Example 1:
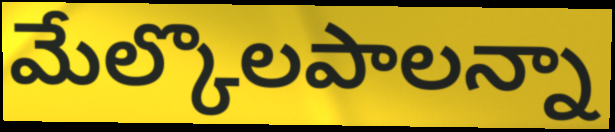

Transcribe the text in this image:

మేల్కొలపాలన్నా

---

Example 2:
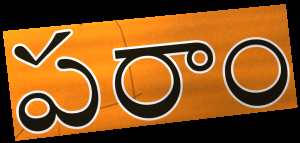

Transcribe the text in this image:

పరాం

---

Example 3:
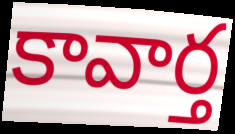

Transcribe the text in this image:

కావార్త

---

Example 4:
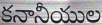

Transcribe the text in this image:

కనానీయుల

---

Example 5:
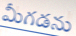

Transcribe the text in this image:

మీగడను